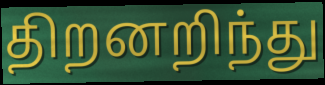
திறனறிந்து